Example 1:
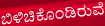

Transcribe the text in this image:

ಬಿಳಿಚಿಕೊಂಡಿರುವೆ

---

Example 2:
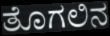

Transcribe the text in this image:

ತೊಗಲಿನ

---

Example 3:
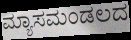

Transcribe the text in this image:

ಮ್ಯಾಸಮಂಡಲದ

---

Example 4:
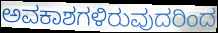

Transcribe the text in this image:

ಅವಕಾಶಗಳಿರುವುದರಿಂದ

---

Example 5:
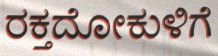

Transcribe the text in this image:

ರಕ್ತದೋಕುಳಿಗೆ